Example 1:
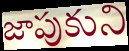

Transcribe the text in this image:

జాపుకుని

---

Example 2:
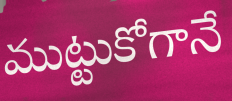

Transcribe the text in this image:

ముట్టుకోగానే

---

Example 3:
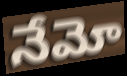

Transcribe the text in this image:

నేమో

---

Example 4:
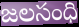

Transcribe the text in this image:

జలసంధి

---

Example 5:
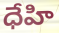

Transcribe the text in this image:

ధేహి